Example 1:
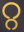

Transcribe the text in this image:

റ്റ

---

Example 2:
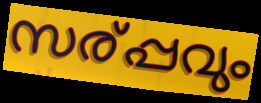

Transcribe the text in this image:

സര്പ്പവും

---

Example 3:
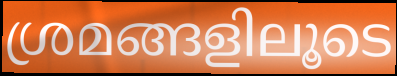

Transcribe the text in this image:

ശ്രമങ്ങളിലൂടെ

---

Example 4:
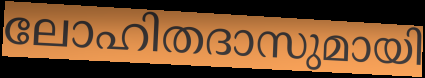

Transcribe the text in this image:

ലോഹിതദാസുമായി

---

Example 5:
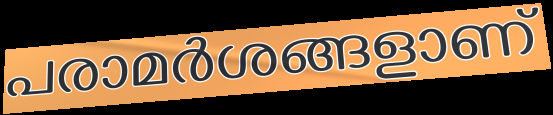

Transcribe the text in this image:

പരാമർശങ്ങളാണ്